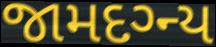
જામદગ્ન્ય